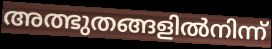
അത്ഭുതങ്ങളിൽനിന്ന്